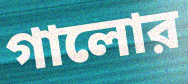
গালোর